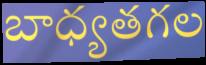
బాధ్యతగల